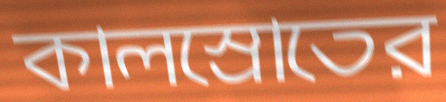
কালস্রোতের